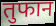
तुफान